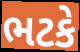
ભટકે